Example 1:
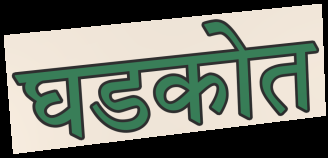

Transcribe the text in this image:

घडकोत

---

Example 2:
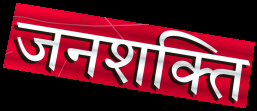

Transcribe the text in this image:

जनशक्ति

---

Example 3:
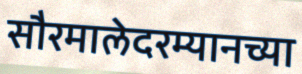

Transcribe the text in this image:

सौरमालेदरम्यानच्या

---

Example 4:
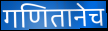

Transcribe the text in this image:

गणितानेच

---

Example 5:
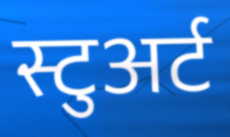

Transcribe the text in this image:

स्टुअर्ट